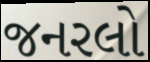
જનરલો